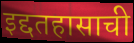
इद्दतहासाची